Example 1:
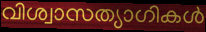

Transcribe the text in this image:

വിശ്വാസത്യാഗികൾ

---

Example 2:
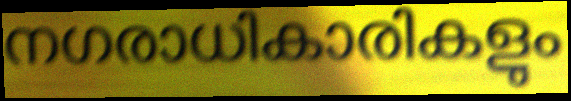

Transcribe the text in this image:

നഗരാധികാരികളും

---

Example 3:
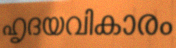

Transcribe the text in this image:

ഹൃദയവികാരം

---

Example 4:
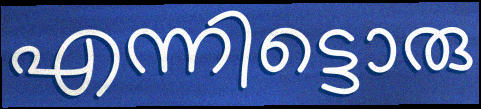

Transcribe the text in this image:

എന്നിട്ടൊരു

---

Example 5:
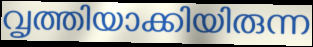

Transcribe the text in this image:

വൃത്തിയാക്കിയിരുന്ന